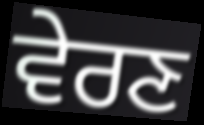
ਵੇਰਣ